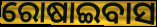
ରୋଷାଇବାସ